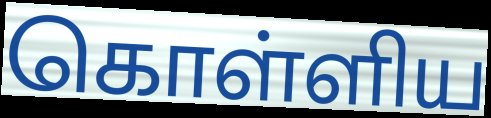
கொள்ளிய